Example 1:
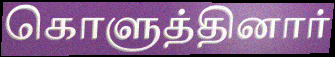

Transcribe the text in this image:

கொளுத்தினார்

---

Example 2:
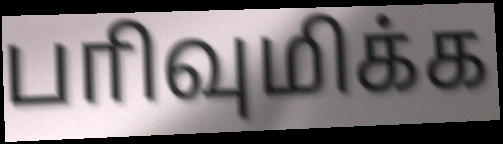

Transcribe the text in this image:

பரிவுமிக்க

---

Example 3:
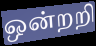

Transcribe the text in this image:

ஒன்றறி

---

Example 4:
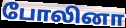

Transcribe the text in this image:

போலினா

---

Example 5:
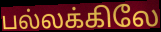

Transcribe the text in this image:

பல்லக்கிலே